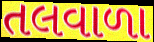
તલવાળા